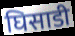
घिसाडी